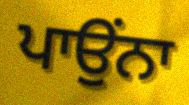
ਪਾਉਂਨਾ